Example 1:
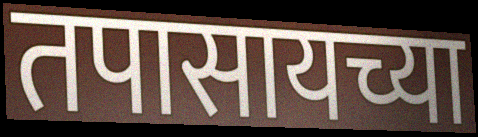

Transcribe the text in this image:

तपासायच्या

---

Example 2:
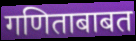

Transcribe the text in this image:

गणिताबाबत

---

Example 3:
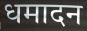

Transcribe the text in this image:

धमादन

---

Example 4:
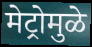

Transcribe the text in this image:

मेट्रोमुळे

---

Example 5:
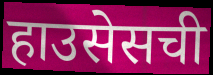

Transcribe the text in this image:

हाउसेसची